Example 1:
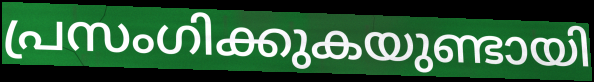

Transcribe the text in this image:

പ്രസംഗിക്കുകയുണ്ടായി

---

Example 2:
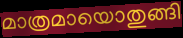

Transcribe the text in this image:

മാത്രമായൊതുങ്ങി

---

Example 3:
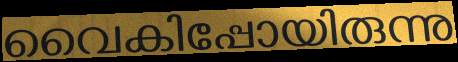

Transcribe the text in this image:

വൈകിപ്പോയിരുന്നു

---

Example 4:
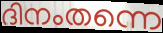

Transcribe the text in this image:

ദിനംതന്നെ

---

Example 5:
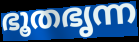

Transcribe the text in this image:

ഭൂതഭൃന്ന